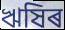
ঋষিৰ